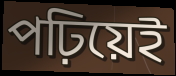
পঢ়িয়েই